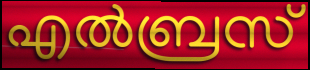
എൽബ്രസ്